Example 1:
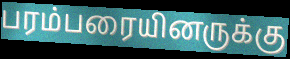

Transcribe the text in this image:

பரம்பரையினருக்கு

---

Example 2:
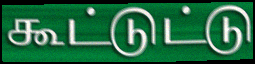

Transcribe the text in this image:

கூட்டுட்டு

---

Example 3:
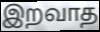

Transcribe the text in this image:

இறவாத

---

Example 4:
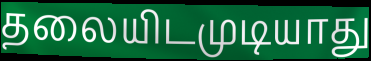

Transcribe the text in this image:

தலையிடமுடியாது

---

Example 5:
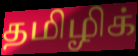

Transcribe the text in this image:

தமிழிக்